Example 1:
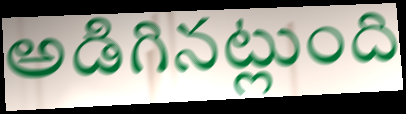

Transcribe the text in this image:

అడిగినట్లుంది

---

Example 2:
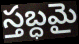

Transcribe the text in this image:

స్తబ్ధమై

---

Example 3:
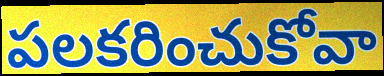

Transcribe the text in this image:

పలకరించుకోవా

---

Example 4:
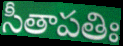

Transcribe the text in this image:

సీతాపతిః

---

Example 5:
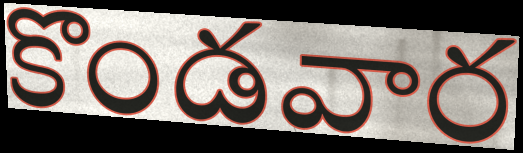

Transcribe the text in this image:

కొండవార